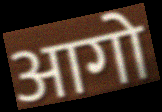
आगो